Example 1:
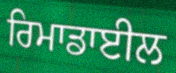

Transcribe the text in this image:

ਰਿਮਾਡਾਈਲ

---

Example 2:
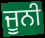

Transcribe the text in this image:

ਜੂਨੀ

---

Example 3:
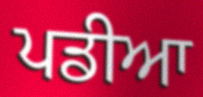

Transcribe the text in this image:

ਪਡੀਆ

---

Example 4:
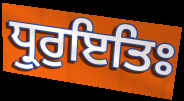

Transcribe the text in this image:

ਧ੍ਰੁਰੁਇਤਿਃ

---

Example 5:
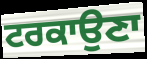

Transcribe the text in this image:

ਟਰਕਾਉਣਾ